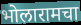
भोलारामचा